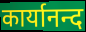
कार्यानन्द